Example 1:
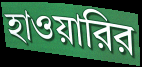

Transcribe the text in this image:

হাওয়ারির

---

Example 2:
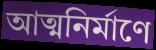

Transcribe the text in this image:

আত্মনির্মাণে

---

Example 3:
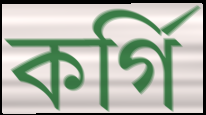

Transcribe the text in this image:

কর্গি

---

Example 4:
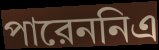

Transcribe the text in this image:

পারেননিএ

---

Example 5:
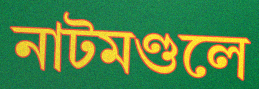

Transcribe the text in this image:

নাটমণ্ডলে